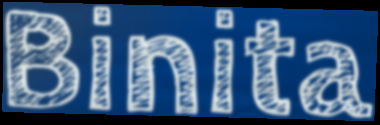
Binita